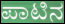
ಪಾಟಿನ